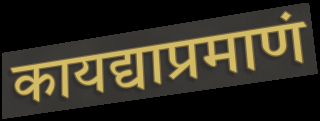
कायद्याप्रमाणं